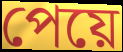
পেয়ে